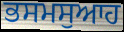
ਭਸਮਸੁਆਹ